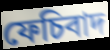
ফেচিবাদ